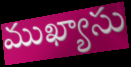
ముఖ్యాసు